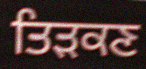
ਤਿੜਕਣ